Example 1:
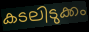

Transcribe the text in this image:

കടലിടുക്കം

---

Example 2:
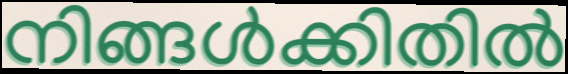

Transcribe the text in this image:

നിങ്ങൾക്കിതിൽ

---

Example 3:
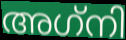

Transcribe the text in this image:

അഗ്‌നി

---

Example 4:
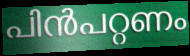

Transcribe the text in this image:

പിൻപറ്റണം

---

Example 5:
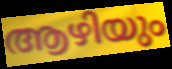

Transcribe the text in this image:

ആഴിയും